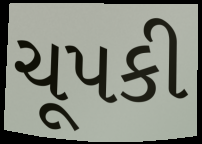
ચૂપકી